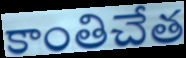
కాంతిచేత